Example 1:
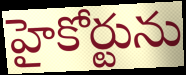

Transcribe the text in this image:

హైకోర్టును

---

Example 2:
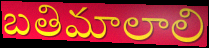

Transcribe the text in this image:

బతిమాలాలి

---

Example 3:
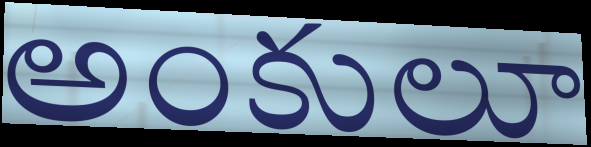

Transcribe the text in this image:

అంకులూ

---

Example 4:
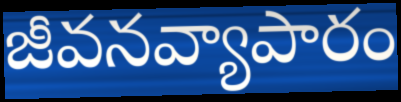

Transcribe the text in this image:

జీవనవ్యాపారం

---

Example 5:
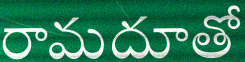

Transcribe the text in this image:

రామదూతో